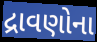
દ્રાવણોના